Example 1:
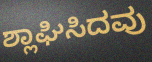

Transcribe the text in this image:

ಶ್ಲಾಘಿಸಿದವು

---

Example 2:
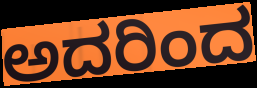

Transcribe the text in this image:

ಅದರಿಂದ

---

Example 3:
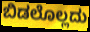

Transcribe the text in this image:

ಬಿಡಲೊಲ್ಲದು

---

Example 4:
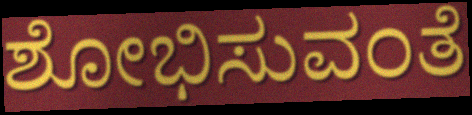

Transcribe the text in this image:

ಶೋಭಿಸುವಂತೆ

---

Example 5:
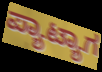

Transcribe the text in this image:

ಪ್ಯಾಟ್ಯಾಗ